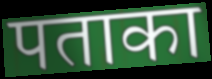
पताका